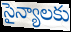
సైన్యాలకు